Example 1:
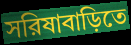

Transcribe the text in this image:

সরিষাবাড়িতে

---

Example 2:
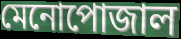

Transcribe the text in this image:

মেনোপোজাল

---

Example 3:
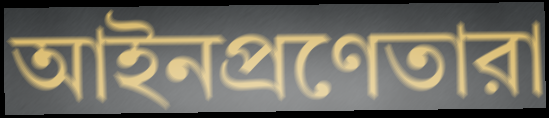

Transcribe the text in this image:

আইনপ্রণেতারা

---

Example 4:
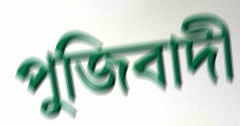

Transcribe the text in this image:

পুজিবাদী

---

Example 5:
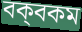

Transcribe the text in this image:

বক্‌বকম